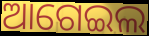
ଆଗେଇଲ